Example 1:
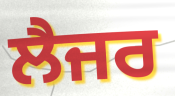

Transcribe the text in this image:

ਲੈਜਰ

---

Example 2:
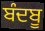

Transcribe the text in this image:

ਬੰਦਬੂ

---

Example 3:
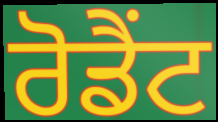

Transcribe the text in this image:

ਰੋਡੈਂਟ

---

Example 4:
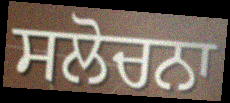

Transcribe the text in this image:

ਸਲੋਚਨਾ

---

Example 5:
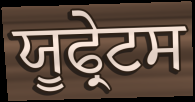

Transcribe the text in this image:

ਯੂਫ੍ਰੇਟਸ